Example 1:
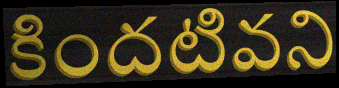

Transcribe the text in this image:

కిందటివని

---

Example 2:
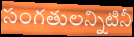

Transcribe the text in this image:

సంగతులన్నిటినీ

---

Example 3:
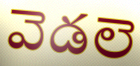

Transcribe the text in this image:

వెడలె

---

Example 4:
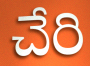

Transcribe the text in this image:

చేరి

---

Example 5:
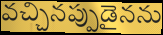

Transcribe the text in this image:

వచ్చినప్పుడైనను